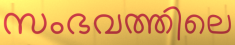
സംഭവത്തിലെ